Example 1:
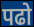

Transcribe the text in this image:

पढो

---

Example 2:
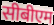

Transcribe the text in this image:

सीबीएम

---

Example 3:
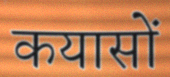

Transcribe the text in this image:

कयासों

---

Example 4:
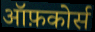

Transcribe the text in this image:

ऑफ़कोर्स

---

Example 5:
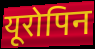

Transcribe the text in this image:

यूरोपिन